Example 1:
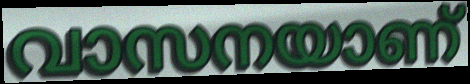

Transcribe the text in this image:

വാസനയാണ്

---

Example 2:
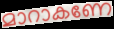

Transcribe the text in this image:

മാറാകണേ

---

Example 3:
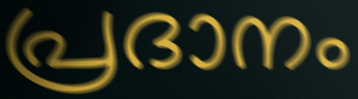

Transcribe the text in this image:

പ്രദാനം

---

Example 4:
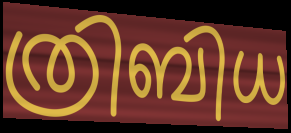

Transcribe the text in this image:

ത്രിബിധ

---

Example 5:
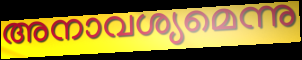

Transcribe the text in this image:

അനാവശ്യമെന്നു